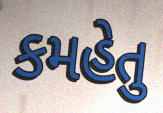
કમહેતુ